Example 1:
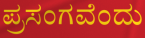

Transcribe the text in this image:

ಪ್ರಸಂಗವೆಂದು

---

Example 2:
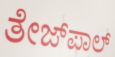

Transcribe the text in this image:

ತೇಜ್‌ಪಾಲ್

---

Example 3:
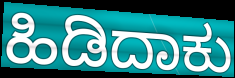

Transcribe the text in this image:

ಹಿಡಿದಾಕು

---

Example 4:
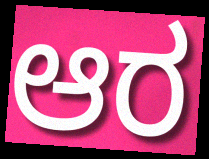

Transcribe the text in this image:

ಆರ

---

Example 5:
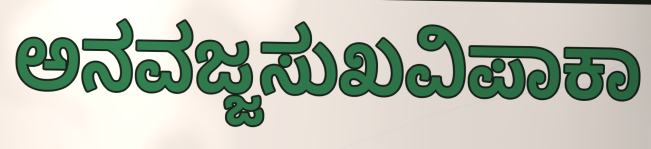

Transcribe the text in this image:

ಅನವಜ್ಜಸುಖವಿಪಾಕಾ